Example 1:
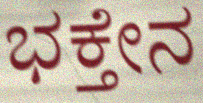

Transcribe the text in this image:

ಭಕ್ತೇನ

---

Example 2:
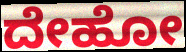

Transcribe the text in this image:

ದೇಹೋ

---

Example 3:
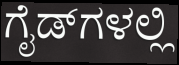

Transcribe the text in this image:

ಗೈಡ್‌ಗಳಲ್ಲಿ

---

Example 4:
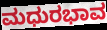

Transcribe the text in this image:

ಮಧುರಭಾವ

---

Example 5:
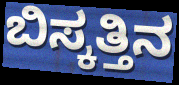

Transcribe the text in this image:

ಬಿಸ್ಕತ್ತಿನ